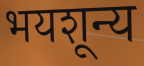
भयशून्य